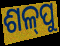
ଶଳ୍‍ପୁ